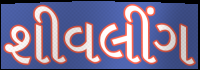
શીવલીંગ